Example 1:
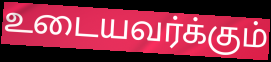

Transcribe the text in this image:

உடையவர்க்கும்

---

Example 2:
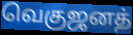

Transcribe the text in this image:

வெகுஜனத்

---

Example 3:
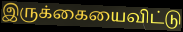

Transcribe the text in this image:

இருக்கையைவிட்டு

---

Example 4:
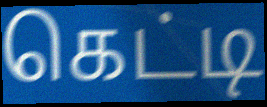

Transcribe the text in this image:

கெட்டி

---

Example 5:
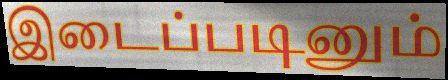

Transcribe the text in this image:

இடைப்படினும்